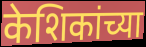
केशिकांच्या